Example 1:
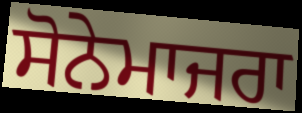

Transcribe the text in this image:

ਸੋਨੇਮਾਜਰਾ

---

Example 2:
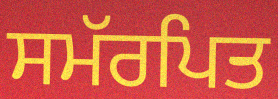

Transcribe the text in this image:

ਸਮੱਰਪਿਤ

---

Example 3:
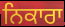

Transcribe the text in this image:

ਨਿਕਾਰਾ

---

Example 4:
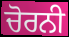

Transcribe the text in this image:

ਚੋਰਨੀ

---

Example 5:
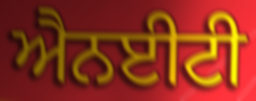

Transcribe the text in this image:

ਐਨਈਟੀ